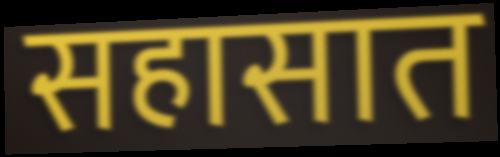
सहासात